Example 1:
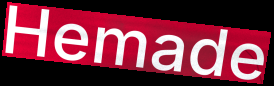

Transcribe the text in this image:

Hemade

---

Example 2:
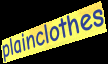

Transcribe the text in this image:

plainclothes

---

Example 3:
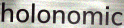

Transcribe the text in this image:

holonomic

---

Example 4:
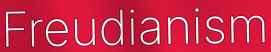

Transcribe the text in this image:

Freudianism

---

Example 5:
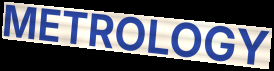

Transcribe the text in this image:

METROLOGY